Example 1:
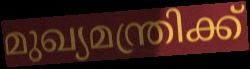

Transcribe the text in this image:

മുഖ്യമന്ത്രിക്ക്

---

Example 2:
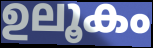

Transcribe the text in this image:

ഉലൂകം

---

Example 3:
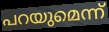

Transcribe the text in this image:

പറയുമെന്ന്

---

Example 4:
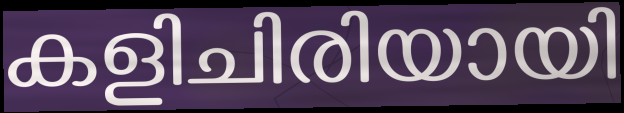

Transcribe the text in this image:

കളിചിരിയായി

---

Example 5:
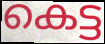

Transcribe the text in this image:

കെട്ട